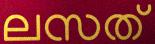
ലസത്